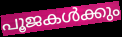
പൂജകൾക്കും